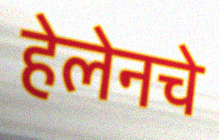
हेलेनचे